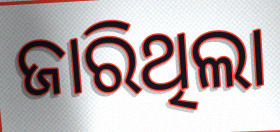
ଜାରିଥିଲା